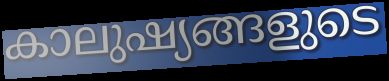
കാലുഷ്യങ്ങളുടെ